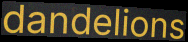
dandelions